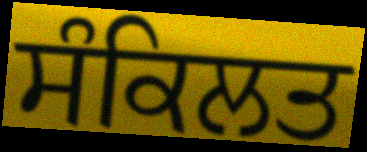
ਸੰਕਿਲਤ